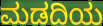
ಮಡದಿಯ